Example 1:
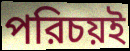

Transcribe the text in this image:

পরিচয়ই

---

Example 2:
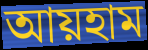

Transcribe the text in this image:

আয়হাম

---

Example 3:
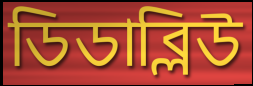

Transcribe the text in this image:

ডিডাব্লিউ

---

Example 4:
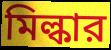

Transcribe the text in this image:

মিল্কার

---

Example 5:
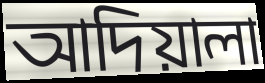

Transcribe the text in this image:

আদিয়ালা